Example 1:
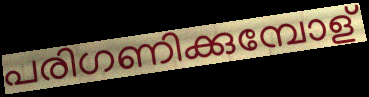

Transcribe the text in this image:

പരിഗണിക്കുമ്പോള്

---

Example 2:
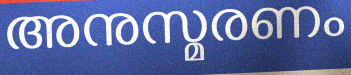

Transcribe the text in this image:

അനുസ്മരണം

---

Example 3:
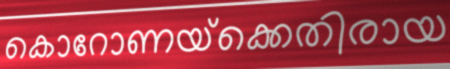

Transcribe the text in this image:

കൊറോണയ്‌ക്കെതിരായ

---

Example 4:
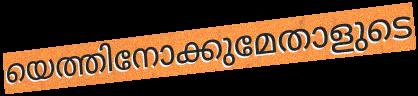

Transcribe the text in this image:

യെത്തിനോക്കുമേതാളുടെ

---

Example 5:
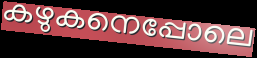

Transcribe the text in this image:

കഴുകനെപ്പോലെ